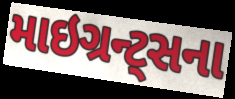
માઇગ્રન્ટ્સના